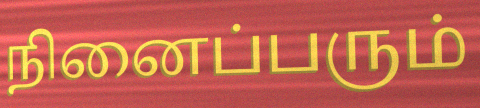
நினைப்பரும்